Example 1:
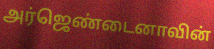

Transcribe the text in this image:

அர்ஜெண்டைனாவின்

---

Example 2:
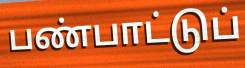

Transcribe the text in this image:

பண்பாட்டுப்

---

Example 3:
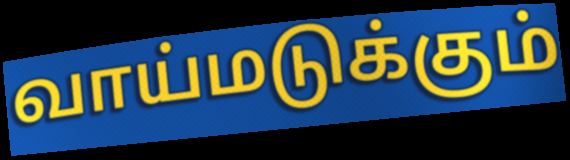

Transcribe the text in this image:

வாய்மடுக்கும்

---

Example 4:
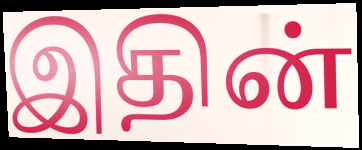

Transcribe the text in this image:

இதின்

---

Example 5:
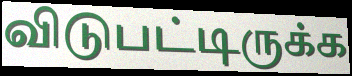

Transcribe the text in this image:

விடுபட்டிருக்க